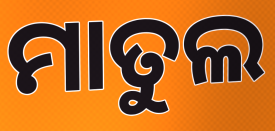
ମାତୁଲ